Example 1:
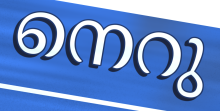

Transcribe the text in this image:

നെറു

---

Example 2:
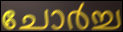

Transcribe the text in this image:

ചോർച്ച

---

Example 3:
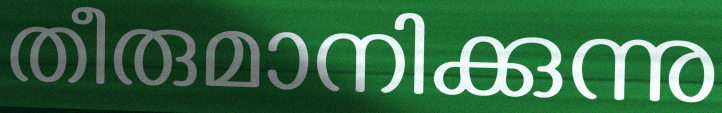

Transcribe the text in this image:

തീരുമാനിക്കുന്നു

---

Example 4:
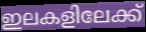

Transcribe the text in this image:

ഇലകളിലേക്ക്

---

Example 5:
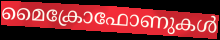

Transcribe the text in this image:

മൈക്രോഫോണുകൾ